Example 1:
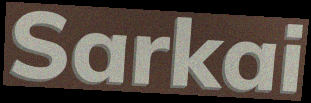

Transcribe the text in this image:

Sarkai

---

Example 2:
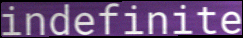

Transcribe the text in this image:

indefinite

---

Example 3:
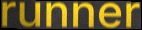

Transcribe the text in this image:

runner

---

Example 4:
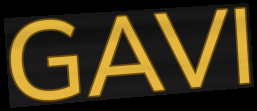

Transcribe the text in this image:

GAVI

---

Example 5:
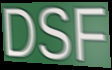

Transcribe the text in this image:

DSF